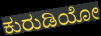
ಕುರುಡಿಯೋ